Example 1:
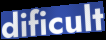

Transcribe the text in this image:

dificult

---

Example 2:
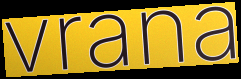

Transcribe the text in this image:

vrana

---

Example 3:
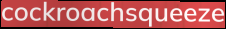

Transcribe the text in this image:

cockroachsqueeze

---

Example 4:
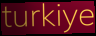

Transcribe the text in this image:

turkiye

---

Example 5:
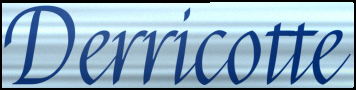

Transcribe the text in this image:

Derricotte